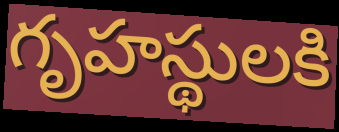
గృహస్థులకి